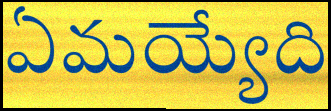
ఏమయ్యేది